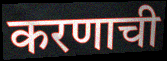
करणाची